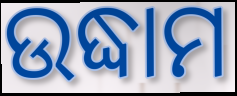
ଉଦ୍ଧାମ